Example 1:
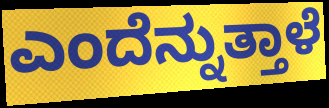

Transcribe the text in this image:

ಎಂದೆನ್ನುತ್ತಾಳೆ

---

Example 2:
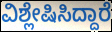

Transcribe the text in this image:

ವಿಶ್ಲೇಷಿಸಿದ್ದಾರೆ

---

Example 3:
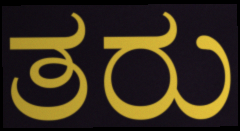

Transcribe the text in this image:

ತರು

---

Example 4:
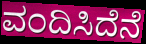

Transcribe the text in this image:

ವಂದಿಸಿದೆನೆ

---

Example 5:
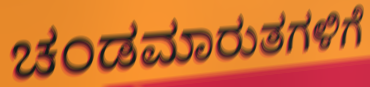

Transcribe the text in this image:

ಚಂಡಮಾರುತಗಳಿಗೆ